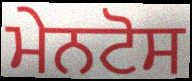
ਮੇਨਟੋਸ